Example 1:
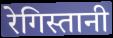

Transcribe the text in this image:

रेगिस्तानी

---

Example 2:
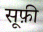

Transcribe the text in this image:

सूफ़ी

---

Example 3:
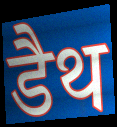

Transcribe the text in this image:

डैथ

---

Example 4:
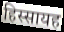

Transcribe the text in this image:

हिस्सायह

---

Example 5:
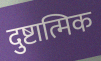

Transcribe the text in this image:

दुष्टात्मिक